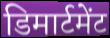
डिमार्टमेंट